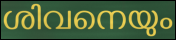
ശിവനെയും